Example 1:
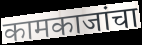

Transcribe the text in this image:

कामकाजांचा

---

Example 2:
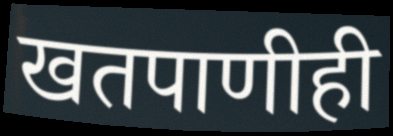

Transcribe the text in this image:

खतपाणीही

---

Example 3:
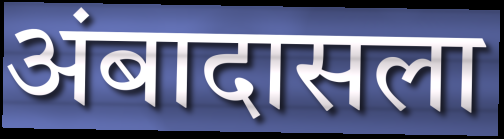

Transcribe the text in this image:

अंबादासला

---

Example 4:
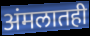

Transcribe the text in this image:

अंमलातही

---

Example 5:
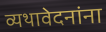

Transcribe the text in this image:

व्यथावेदनांना